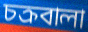
চক্রবালা